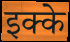
इक्के